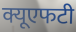
क्यूएफटी